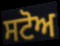
ਸਟੋਅ